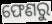
ଫେଣରୁ